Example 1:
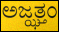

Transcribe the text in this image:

ಅಜ್ಝತ್ತಂ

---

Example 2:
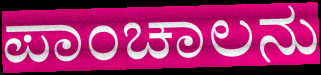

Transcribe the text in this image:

ಪಾಂಚಾಲನು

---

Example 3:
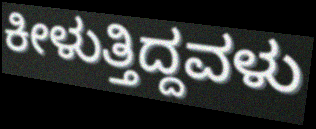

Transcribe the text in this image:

ಕೀಳುತ್ತಿದ್ದವಳು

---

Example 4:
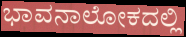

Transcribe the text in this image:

ಭಾವನಾಲೋಕದಲ್ಲಿ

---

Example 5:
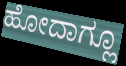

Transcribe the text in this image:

ಹೋದಾಗ್ಲೂ